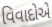
વિવાદોએ